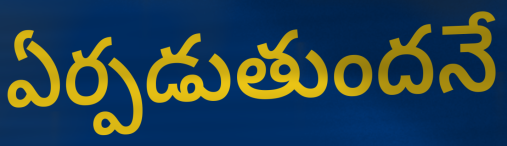
ఏర్పడుతుందనే